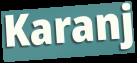
Karanj